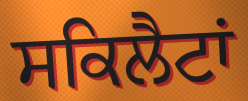
ਸਕਿਲੈਟਾਂ